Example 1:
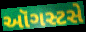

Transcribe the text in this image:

ઑગસ્ટસે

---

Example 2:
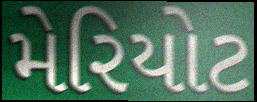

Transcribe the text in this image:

મેરિયોટ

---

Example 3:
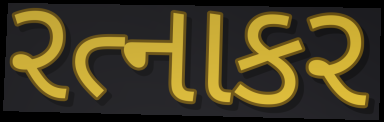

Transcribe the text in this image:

રત્નાકર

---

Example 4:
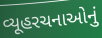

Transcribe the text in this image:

વ્યૂહરચનાઓનું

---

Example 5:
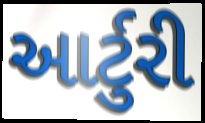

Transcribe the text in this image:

આર્ટુરી